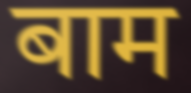
बाम